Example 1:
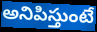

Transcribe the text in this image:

అనిపిస్తుంటే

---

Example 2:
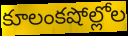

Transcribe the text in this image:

కూలంకషోల్లోల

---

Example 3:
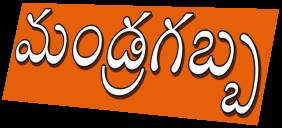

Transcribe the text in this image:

మండ్రగబ్బ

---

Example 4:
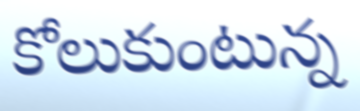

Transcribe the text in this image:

కోలుకుంటున్న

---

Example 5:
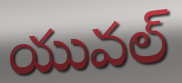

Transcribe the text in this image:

యువల్